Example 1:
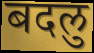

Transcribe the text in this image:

बदलु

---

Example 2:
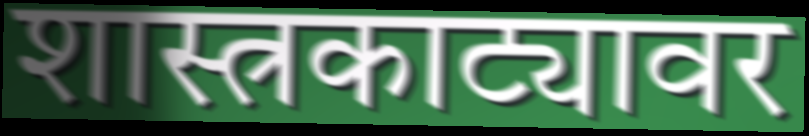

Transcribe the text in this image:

शास्त्रकाट्यावर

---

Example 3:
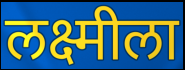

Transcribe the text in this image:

लक्ष्मीला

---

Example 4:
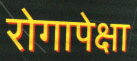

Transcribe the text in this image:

रोगापेक्षा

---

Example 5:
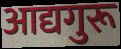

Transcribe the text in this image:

आद्यगुरू